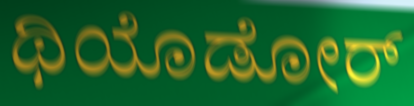
ಥಿಯೊಡೋರ್